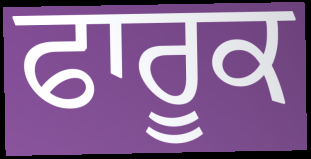
ਫਾਰੂਕ